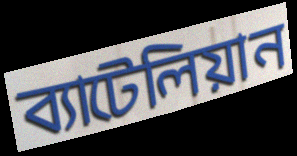
ব্যাটেলিয়ান